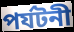
পর্যটনী